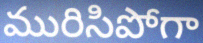
మురిసిపోగా